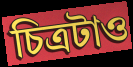
চিত্রটাও